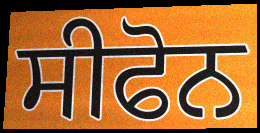
ਸੀਫੋਨ